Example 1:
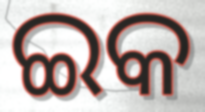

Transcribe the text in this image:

ଇକ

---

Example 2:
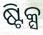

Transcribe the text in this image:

ଷ୍ଟିକ୍ସ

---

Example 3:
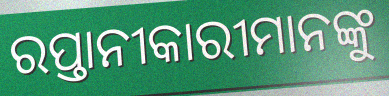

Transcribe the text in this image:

ରପ୍ତାନୀକାରୀମାନଙ୍କୁ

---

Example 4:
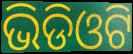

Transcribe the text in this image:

ଭିଡିଓଟି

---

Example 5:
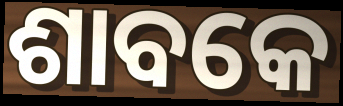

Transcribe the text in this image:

ଶାବକେ